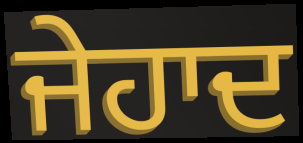
ਜੇਹਾਦ